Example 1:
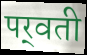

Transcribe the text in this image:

पर्वती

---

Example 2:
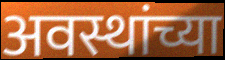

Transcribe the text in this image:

अवस्थांच्या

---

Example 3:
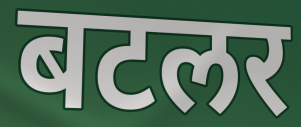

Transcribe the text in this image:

बटलर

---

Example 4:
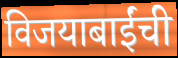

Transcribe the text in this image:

विजयाबाईंची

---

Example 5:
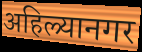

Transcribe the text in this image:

अहिल्यानगर